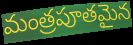
మంత్రపూతమైన